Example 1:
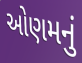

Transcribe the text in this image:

ઓણમનું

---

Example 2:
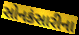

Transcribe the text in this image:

સોનકંસારીના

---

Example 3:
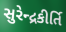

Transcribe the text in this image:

સુરેન્દ્રકીર્તિ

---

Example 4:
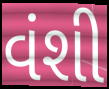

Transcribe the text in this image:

વંશી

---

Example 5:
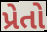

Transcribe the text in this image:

પ્રેતો